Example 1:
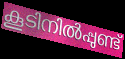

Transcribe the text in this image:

കൂടിനിൽപ്പുണ്ട്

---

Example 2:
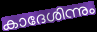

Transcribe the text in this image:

കാദേശിന്നും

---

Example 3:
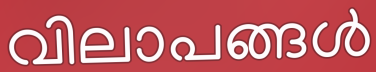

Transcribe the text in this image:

വിലാപങ്ങൾ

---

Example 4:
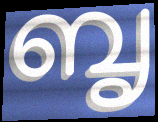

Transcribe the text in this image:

ബൃ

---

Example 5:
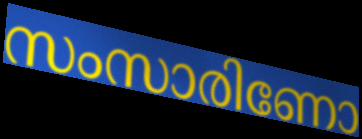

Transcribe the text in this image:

സംസാരിണോ